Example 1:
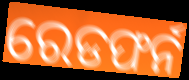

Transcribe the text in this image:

ରେଡଫର୍ନ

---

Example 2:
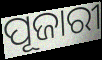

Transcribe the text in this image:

ପୂଜାରୀ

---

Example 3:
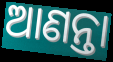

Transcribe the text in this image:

ଆଣନ୍ତା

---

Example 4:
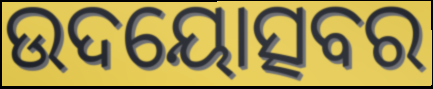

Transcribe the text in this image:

ଉଦୟୋତ୍ସବର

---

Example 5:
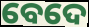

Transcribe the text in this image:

ବେଦେ